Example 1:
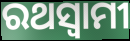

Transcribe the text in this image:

ରଥସ୍ୱାମୀ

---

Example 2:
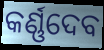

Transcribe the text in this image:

କର୍ଣ୍ଣଦେବ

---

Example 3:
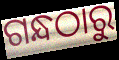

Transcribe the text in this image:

ଗନ୍ଧଠାରୁ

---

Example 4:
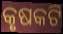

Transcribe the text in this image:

କୃଷକଟି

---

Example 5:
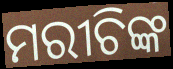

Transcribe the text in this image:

ମରୀଚିଙ୍କ